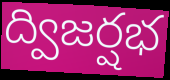
ద్విజర్షభ